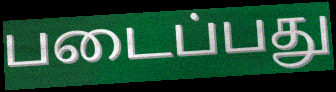
படைப்பது